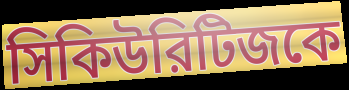
সিকিউরিটিজকে